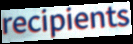
recipients